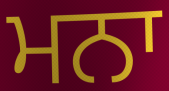
ਮਨਾ